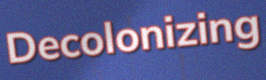
Decolonizing